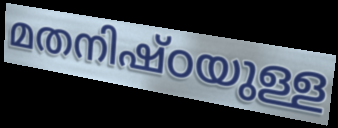
മതനിഷ്ഠയുള്ള